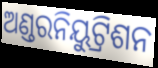
ଅଣ୍ଡରନିୟୁଟ୍ରିଶନ